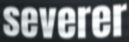
severer